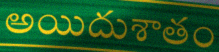
అయిదుశాతం